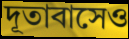
দূতাবাসেও